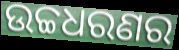
ଉଚ୍ଚଧରଣର